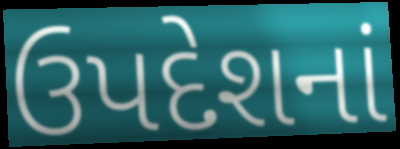
ઉપદેશનાં